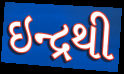
ઇન્દ્રથી